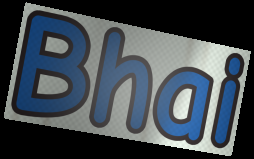
Bhai